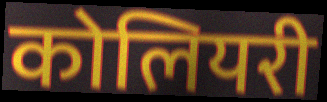
कोलियरी